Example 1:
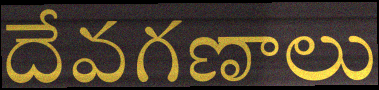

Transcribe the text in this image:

దేవగణాలు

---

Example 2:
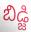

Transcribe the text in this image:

బిడ్జి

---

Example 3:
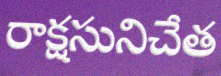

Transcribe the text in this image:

రాక్షసునిచేత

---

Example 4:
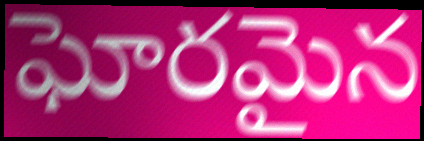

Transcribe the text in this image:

ఘోరమైన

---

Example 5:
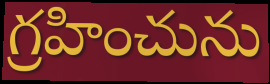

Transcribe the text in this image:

గ్రహించును